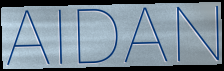
AIDAN